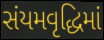
સંયમવૃદ્ધિમાં